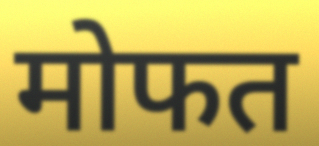
मोफत